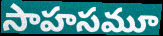
సాహసమూ